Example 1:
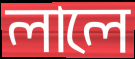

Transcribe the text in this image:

লালে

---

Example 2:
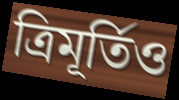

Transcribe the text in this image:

ত্ৰিমূৰ্তিও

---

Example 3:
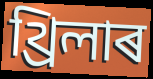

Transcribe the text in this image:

থ্ৰিলাৰ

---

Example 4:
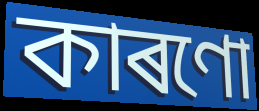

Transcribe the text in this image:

কাৰণো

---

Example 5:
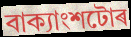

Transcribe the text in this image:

বাক্যাংশটোৰ